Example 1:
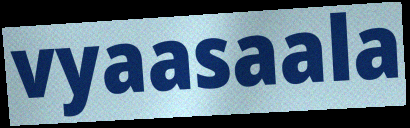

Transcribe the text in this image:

vyaasaala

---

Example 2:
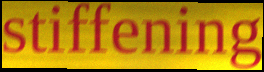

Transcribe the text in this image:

stiffening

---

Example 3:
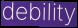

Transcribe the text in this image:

debility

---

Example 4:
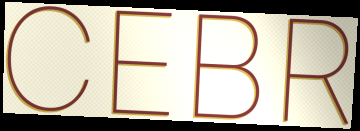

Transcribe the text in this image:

CEBR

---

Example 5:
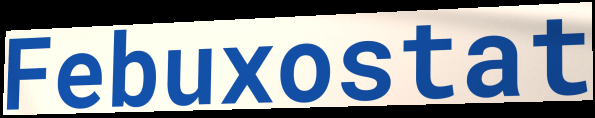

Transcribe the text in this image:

Febuxostat